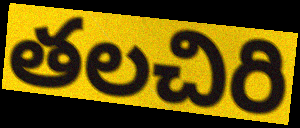
తలచిరి